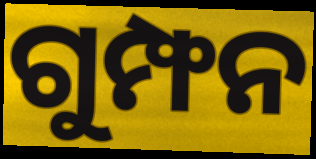
ଗୁମ୍ଫନ